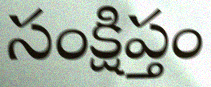
సంక్షిప్తం